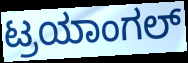
ಟ್ರಯಾಂಗಲ್